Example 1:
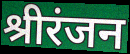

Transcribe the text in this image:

श्रीरंजन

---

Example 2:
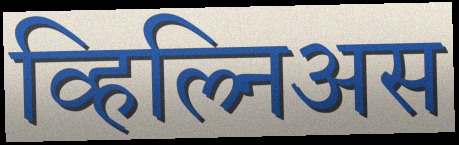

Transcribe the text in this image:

व्हिल्निअस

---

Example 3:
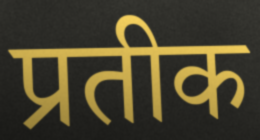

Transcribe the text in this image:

प्रतीक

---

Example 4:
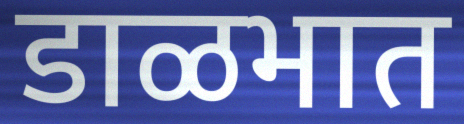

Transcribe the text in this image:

डाळभात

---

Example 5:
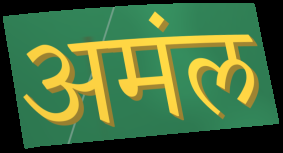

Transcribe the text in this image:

अमंल